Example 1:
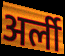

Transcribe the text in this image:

अर्ली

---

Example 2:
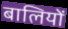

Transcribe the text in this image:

बालियों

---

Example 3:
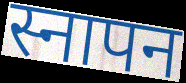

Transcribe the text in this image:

स्नापन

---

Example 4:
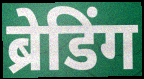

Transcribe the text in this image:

ब्रेडिंग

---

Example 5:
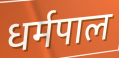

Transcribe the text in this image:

धर्मपाल